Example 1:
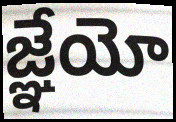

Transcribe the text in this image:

జ్ఞేయో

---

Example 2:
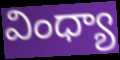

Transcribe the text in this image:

వింధ్యా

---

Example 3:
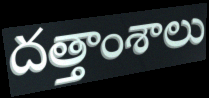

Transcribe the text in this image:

దత్తాంశాలు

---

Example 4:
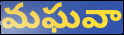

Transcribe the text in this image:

మఘవా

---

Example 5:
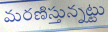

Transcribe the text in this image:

మరణిస్తున్నట్టు